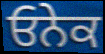
ਓਨੇਕ